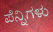
ಪೆನ್ನಿಗಳು